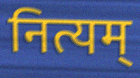
नित्यम्